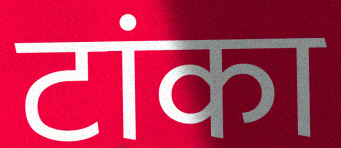
टांका